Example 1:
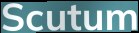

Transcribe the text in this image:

Scutum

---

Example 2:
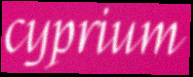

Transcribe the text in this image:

cyprium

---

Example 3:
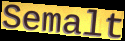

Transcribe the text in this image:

Semalt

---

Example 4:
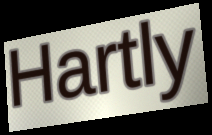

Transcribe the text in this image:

Hartly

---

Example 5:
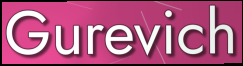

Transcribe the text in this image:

Gurevich